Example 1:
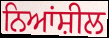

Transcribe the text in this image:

ਨਿਆਂਸ਼ੀਲ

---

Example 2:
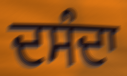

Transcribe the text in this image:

ਦਸੰਦਾ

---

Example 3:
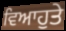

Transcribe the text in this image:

ਵਿਆਹੁਤੇ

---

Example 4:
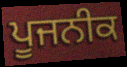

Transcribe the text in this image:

ਪੂਜਨੀਕ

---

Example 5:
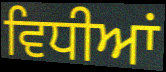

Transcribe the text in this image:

ਵਿਧੀਆਂ